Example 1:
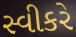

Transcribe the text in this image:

સ્વીકરે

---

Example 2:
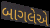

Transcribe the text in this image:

બાગલેએ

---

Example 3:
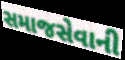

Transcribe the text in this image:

સમાજસેવાની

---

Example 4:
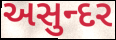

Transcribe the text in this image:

અસુન્દર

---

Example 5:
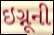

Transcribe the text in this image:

ઇગ્નૂની